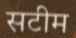
सटीम